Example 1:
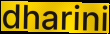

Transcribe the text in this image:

dharini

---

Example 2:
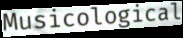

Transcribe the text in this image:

Musicological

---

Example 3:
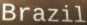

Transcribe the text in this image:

Brazil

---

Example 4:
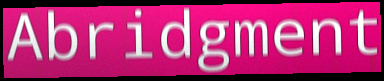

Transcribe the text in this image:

Abridgment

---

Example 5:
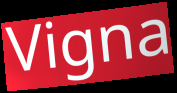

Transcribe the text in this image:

Vigna